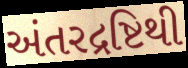
અંતરદ્રષ્ટિથી